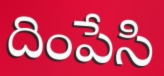
దింపేసి